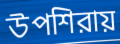
উপশিরায়